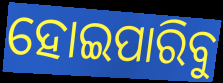
ହୋଇପାରିବୁ